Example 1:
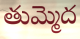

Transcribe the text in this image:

తుమ్మెద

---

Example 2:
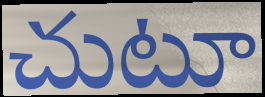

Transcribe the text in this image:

చుటూ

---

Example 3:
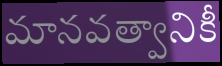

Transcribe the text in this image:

మానవత్వానికీ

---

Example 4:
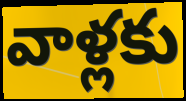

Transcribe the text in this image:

వాళ్లకు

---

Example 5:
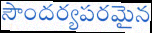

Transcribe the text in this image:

సౌందర్యపరమైన